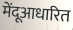
मेंदूआधारित